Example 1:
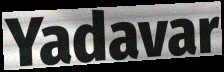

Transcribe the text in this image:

Yadavar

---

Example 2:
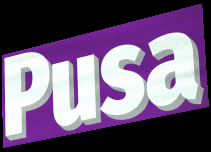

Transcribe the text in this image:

Pusa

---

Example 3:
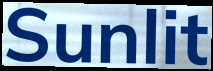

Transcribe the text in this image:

Sunlit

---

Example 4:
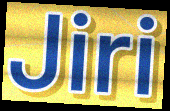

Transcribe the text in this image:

Jiri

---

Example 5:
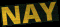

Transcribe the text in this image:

NAY